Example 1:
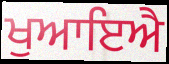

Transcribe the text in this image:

ਖੁਆਇਐ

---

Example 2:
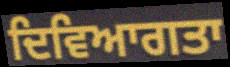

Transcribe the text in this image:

ਦਿਵਿਆਗਤਾ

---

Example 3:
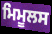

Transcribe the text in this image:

ਮਿਮੂਲਸ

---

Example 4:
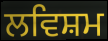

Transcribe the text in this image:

ਲਵਿਸ਼ਮ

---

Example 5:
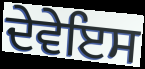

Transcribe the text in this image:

ਦੇਵੇਇਸ